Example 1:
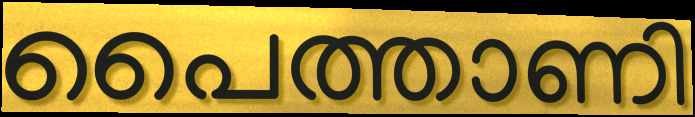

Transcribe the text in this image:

പൈത്താണി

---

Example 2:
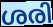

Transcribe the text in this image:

ശരി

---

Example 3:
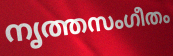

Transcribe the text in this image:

നൃത്തസംഗീതം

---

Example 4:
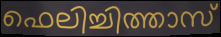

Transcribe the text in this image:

ഫെലിച്ചിത്താസ്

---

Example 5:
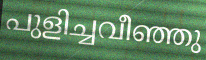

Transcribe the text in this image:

പുളിച്ചവീഞ്ഞു